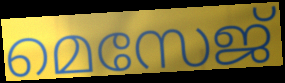
മെസേജ്